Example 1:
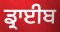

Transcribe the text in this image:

ਡ੍ਰਾਈਬ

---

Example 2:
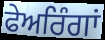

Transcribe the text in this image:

ਫੇਅਰਿੰਗਾਂ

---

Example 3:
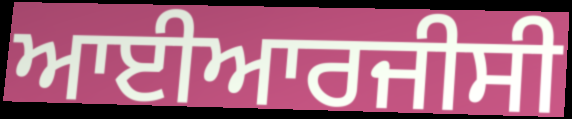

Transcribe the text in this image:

ਆਈਆਰਜੀਸੀ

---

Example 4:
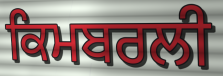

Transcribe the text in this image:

ਕਿਮਬਰਲੀ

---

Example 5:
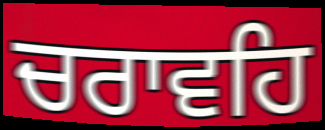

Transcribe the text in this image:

ਚਰਾਵਹਿ